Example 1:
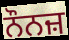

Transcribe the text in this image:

ਨੌਨਜ਼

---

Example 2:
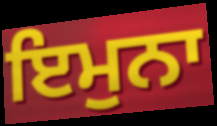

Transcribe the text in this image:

ਇਮੁਨਾ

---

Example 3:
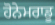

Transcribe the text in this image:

ਹੋਨੇਮਰਾਡੂ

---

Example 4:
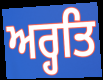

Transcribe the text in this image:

ਅਰ੍ਹਤਿ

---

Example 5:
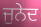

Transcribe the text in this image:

ਜੁਨੇਦ